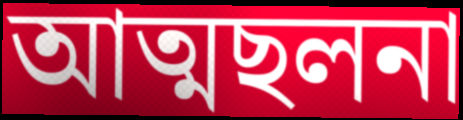
আত্মছলনা